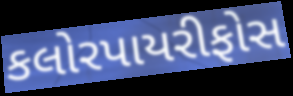
કલોરપાયરીફોસ